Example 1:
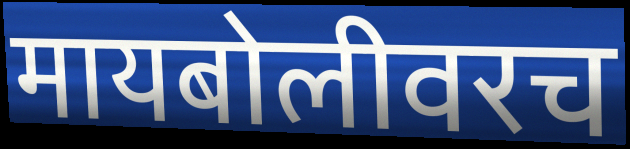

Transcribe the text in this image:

मायबोलीवरच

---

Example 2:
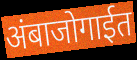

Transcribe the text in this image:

अंबाजोगाईत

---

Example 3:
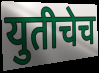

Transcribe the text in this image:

युतीचेच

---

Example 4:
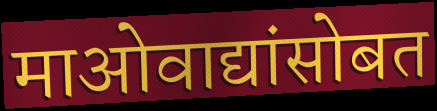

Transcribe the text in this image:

माओवाद्यांसोबत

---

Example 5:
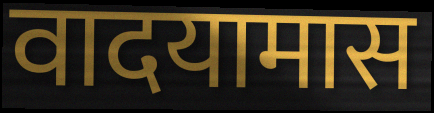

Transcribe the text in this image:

वादयामास